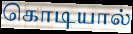
கொடியால்